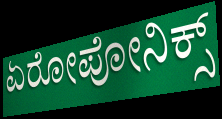
ಏರೋಪೋನಿಕ್ಸ್